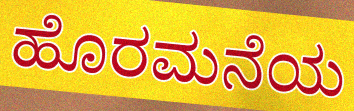
ಹೊರಮನೆಯ